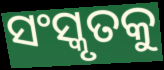
ସଂସ୍କୃତକୁ